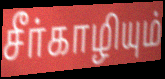
சீர்காழியும்